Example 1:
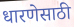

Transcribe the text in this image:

धारणेसाठी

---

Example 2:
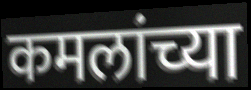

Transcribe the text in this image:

कमलांच्या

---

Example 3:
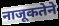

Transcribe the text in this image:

नाजूकतेने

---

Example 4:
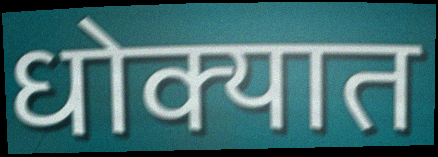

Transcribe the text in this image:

धोक्‍यात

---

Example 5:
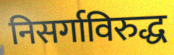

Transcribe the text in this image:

निसर्गाविरुद्ध